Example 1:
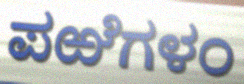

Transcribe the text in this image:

ಪಱೆಗಳಂ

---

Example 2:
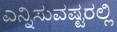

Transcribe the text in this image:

ಎನ್ನಿಸುವಷ್ಟರಲ್ಲಿ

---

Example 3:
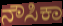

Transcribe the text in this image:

ನೌಸಿಕಾ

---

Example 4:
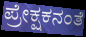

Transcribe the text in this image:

ಪ್ರೇಕ್ಷಕನಂತೆ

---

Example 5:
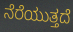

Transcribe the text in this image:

ನೆರೆಯುತ್ತದೆ